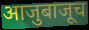
आजुबाजूच